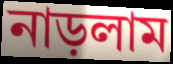
নাড়লাম